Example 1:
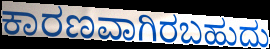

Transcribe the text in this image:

ಕಾರಣವಾಗಿರಬಹುದು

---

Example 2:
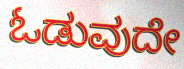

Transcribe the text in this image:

ಓಡುವುದೇ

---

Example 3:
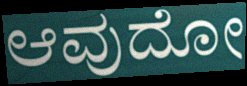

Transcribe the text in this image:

ಆವುದೋ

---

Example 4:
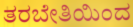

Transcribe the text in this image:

ತರಬೇತಿಯಿಂದ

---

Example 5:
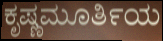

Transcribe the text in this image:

ಕೃಷ್ಣಮೂರ್ತಿಯ